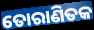
ତୋରାଣିତକ